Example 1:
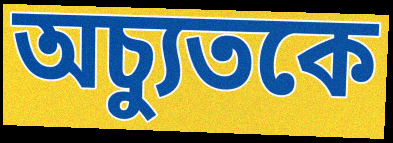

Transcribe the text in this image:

অচ্যুতকে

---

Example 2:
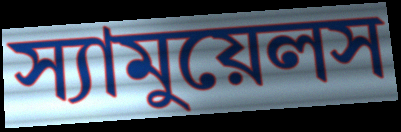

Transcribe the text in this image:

স্যামুয়েলস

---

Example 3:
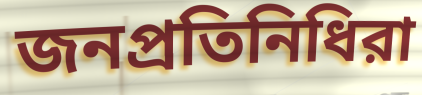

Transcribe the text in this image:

জনপ্রতিনিধিরা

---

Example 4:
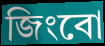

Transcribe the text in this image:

জিংবো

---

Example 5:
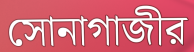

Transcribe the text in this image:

সোনাগাজীর